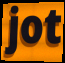
jot